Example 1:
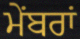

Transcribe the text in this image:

ਮੇਂਬਰਾਂ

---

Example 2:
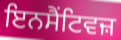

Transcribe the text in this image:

ਇਨਸੈਂਟਿਵਜ਼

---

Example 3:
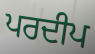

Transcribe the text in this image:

ਪਰਦੀਪ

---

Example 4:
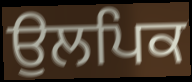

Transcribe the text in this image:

ਉਲਪਿਕ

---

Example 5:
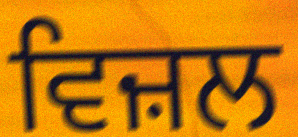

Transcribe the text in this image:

ਵਿਜ਼ਲ